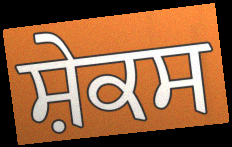
ਸ਼ੇਕਸ